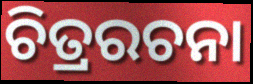
ଚିତ୍ରରଚନା